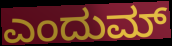
ಎಂದುಮ್